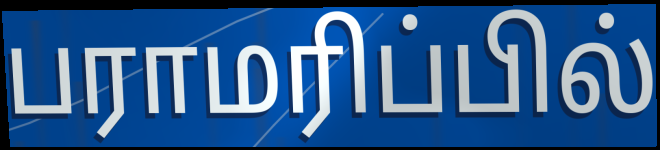
பராமரிப்பில்